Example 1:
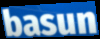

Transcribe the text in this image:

basun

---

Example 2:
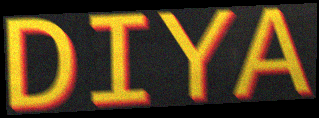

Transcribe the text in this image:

DIYA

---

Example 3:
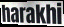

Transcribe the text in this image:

harakhi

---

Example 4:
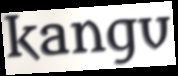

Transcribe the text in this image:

kangu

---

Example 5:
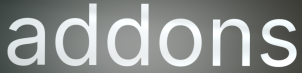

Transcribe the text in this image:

addons